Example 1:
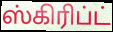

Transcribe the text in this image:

ஸ்கிரிப்ட்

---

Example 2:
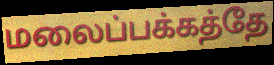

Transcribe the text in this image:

மலைப்பக்கத்தே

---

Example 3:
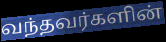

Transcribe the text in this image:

வந்தவர்களின்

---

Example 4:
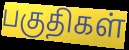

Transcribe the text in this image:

பகுதிகள்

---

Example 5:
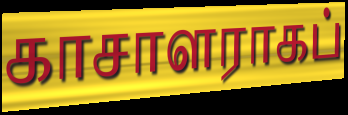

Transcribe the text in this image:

காசாளராகப்